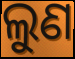
ଲୁଣ